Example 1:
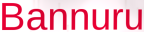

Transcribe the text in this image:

Bannuru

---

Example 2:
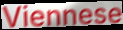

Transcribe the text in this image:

Viennese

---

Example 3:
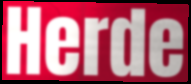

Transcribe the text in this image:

Herde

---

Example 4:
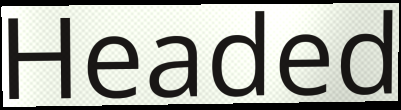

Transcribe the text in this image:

Headed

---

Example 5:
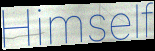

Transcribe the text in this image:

Himself